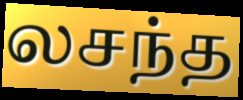
லசந்த